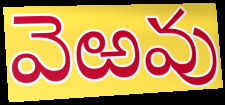
వెఱవు